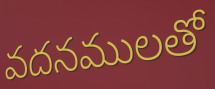
వదనములతో